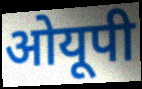
ओयूपी